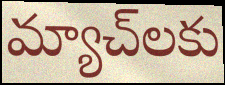
మ్యాచ్‌లకు